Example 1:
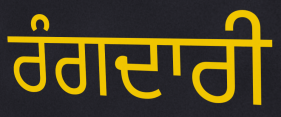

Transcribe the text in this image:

ਰੰਗਦਾਰੀ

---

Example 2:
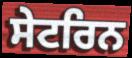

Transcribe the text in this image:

ਸੇਟਰਿਨ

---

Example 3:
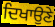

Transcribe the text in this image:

ਦਿਖਾਉਣੇ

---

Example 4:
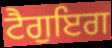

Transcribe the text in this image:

ਟੈਗੁਇਗ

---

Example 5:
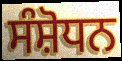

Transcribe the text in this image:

ਸੰਸ਼ੋਧਨ